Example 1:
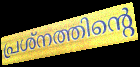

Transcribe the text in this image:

പ്രശ്നത്തിന്റെ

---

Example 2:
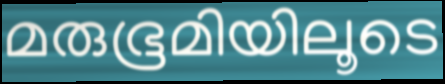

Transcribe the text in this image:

മരുഭൂമിയിലൂടെ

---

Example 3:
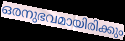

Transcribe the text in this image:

ഒരനുഭവമായിരിക്കും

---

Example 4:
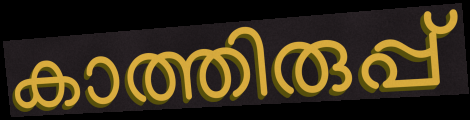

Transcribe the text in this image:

കാത്തിരുപ്പ്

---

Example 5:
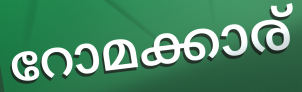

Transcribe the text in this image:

റോമക്കാര്